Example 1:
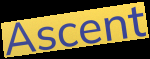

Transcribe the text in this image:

Ascent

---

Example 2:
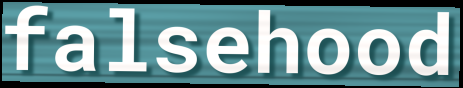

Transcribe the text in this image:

falsehood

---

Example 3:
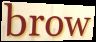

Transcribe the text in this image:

brow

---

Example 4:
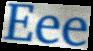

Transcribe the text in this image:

Eee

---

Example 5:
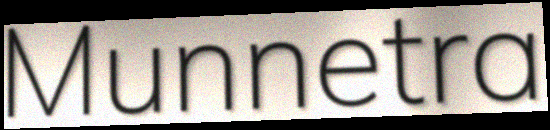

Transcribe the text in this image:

Munnetra